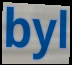
byl